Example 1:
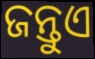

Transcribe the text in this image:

ଜନ୍ତୁଏ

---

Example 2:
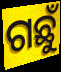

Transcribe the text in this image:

ଗଛୁଁ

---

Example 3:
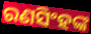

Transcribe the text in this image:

ରଣସିଂହଙ୍କ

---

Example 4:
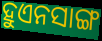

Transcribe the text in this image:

ହୁଏନସାଙ୍ଗ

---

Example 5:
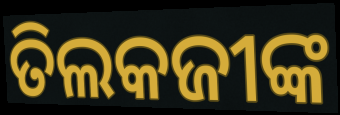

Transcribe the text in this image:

ତିଲକଜୀଙ୍କ